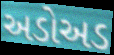
અડોઅડ